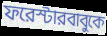
ফরেস্টারবাবুকে